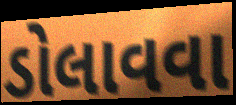
ડોલાવવા